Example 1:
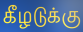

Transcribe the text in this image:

கீழடுக்கு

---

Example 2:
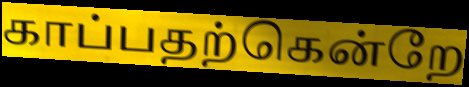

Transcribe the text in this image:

காப்பதற்கென்றே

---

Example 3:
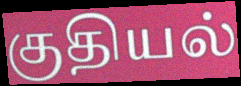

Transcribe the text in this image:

குதியல்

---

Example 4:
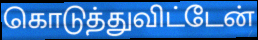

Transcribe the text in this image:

கொடுத்துவிட்டேன்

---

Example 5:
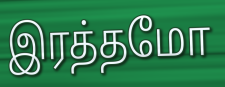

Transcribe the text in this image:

இரத்தமோ